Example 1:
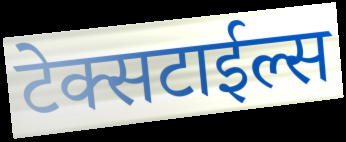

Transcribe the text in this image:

टेक्सटाईल्स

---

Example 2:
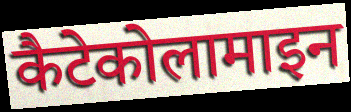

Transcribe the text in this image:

कैटेकोलामाइन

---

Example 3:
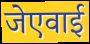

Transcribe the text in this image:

जेएवाई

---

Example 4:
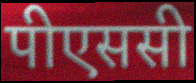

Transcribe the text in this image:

पीएससी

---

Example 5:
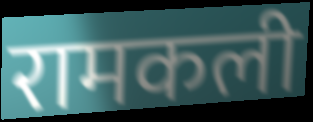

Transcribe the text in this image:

रामकली